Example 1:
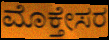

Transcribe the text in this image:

ಮೊಕ್ತೇಸರ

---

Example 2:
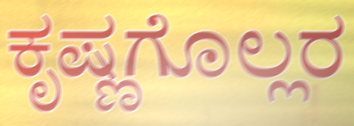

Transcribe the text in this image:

ಕೃಷ್ಣಗೊಲ್ಲರ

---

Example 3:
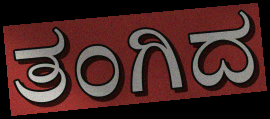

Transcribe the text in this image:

ತಂಗಿದ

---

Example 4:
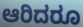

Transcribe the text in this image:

ಆರಿದರೂ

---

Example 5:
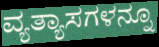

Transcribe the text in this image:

ವ್ಯತ್ಯಾಸಗಳನ್ನೂ